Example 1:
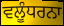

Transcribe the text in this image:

ਵਲੂੰਧਰਨਾ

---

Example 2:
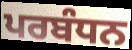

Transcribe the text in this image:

ਪਰਬੰਧਨ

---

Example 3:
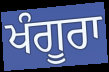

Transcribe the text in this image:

ਖੰਗੂਰਾ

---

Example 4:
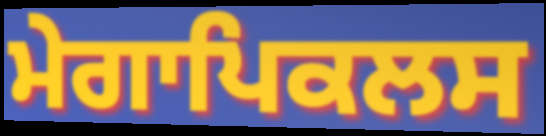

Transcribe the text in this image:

ਮੇਗਾਪਿਕਲਸ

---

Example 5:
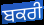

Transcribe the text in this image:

ਬਕਰੀ